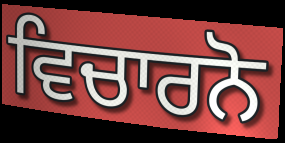
ਵਿਚਾਰਨੋ